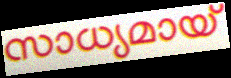
സാധ്യമായ്